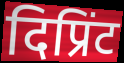
दिप्रिंट